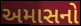
અમાસનો